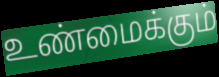
உண்மைக்கும்